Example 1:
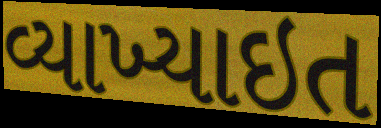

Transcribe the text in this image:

વ્યાખ્યાઇત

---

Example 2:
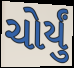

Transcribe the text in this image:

ચોર્યું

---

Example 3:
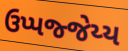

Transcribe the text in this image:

ઉપ્પજ્જેય્ય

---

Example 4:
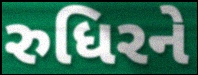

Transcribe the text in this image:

રુધિરને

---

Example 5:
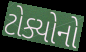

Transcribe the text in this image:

ટોક્યોનો